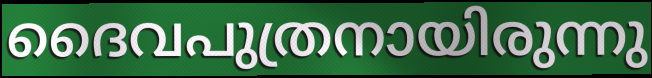
ദൈവപുത്രനായിരുന്നു